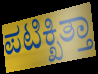
ಪಟಿಕ್ಖಿತ್ತಾ